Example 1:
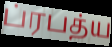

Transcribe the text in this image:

ப்ரபத்ய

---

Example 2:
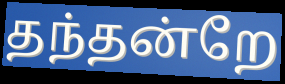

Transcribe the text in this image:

தந்தன்றே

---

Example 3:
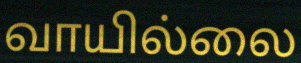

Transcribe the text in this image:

வாயில்லை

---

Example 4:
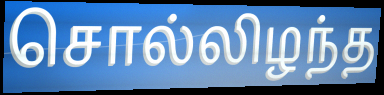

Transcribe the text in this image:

சொல்லிழந்த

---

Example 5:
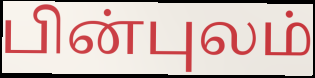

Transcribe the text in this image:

பின்புலம்